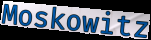
Moskowitz